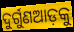
ଦୁର୍ଗୁଣଆଡ଼କୁ